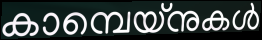
കാമ്പെയ്നുകൾ